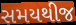
સમયથીજ